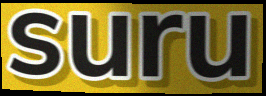
suru